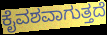
ಕೈವಶವಾಗುತ್ತದೆ